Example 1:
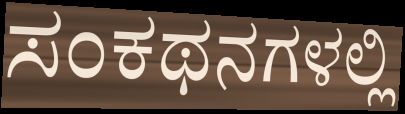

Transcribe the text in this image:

ಸಂಕಥನಗಳಲ್ಲಿ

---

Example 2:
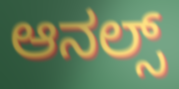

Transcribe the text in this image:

ಆನಲ್ಸ್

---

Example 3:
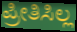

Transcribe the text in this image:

ಪ್ರೀತಿಸಿಲ್ಲ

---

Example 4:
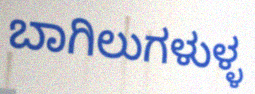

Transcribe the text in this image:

ಬಾಗಿಲುಗಳುಳ್ಳ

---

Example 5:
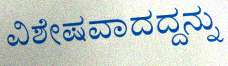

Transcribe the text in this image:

ವಿಶೇಷವಾದದ್ದನ್ನು